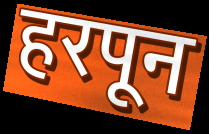
हरपून